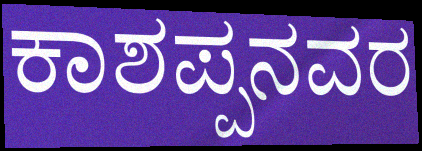
ಕಾಶಪ್ಪನವರ